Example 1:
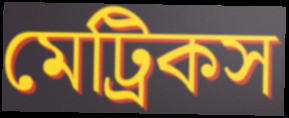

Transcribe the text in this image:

মেট্রিকস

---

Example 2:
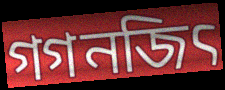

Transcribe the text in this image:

গগনজিৎ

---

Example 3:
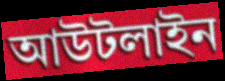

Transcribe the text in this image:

আউটলাইন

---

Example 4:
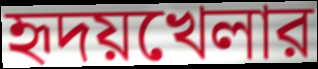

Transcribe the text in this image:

হৃদয়খেলার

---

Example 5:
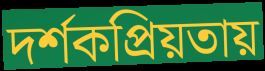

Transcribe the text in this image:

দর্শকপ্রিয়তায়